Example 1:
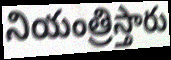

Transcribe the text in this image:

నియంత్రిస్తారు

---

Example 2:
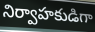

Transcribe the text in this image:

నిర్వాహకుడిగా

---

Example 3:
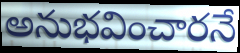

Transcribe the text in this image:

అనుభవించారనే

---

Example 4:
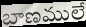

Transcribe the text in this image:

బాణములే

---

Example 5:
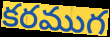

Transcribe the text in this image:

కరముగ